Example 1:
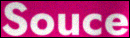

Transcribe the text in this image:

Souce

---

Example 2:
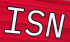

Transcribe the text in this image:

ISN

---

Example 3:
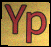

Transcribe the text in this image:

Yp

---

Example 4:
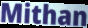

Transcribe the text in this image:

Mithan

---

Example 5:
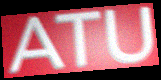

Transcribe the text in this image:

ATU